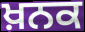
ਖ਼ਨਕ